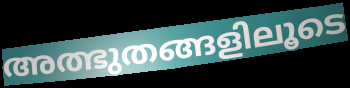
അത്ഭുതങ്ങളിലൂടെ